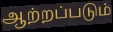
ஆற்றப்படும்